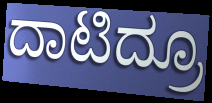
ದಾಟಿದ್ರೂ